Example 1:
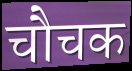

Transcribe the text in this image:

चौचक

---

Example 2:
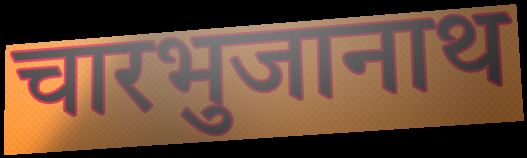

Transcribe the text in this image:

चारभुजानाथ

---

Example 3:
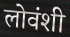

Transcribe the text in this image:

लोवंशी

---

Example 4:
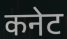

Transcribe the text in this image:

कनेट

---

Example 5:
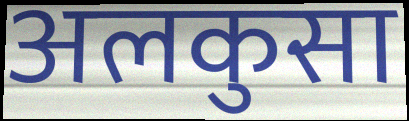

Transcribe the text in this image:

अलकुसा